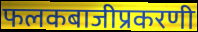
फलकबाजीप्रकरणी